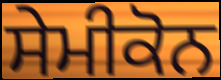
ਸੇਮੀਕੋਨ